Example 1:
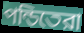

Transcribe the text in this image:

পন্ডিতেরা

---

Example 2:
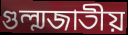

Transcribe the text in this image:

গুল্মজাতীয়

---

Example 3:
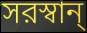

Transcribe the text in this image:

সরস্বান্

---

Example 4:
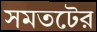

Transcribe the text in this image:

সমতটের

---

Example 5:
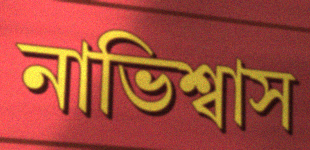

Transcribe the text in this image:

নাভিশ্বাস